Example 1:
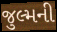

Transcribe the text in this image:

જુલ્મની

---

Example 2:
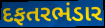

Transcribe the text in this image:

દફતરભંડાર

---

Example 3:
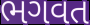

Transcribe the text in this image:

ભગવત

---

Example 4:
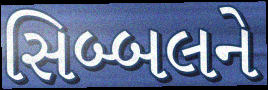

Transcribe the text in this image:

સિબ્બલને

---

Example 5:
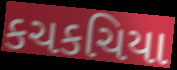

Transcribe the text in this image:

કચકચિયા